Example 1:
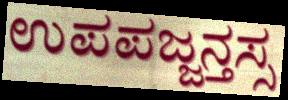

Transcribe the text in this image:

ಉಪಪಜ್ಜನ್ತಸ್ಸ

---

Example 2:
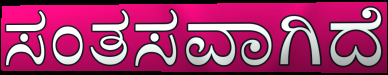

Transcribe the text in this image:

ಸಂತಸವಾಗಿದೆ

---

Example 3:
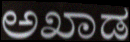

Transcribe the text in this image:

ಅಖಾಡ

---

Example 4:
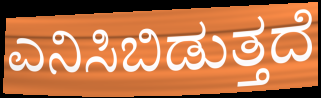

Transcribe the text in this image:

ಎನಿಸಿಬಿಡುತ್ತದೆ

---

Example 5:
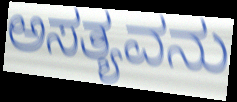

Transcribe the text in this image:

ಅಸತ್ಯವನು